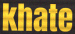
khate